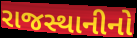
રાજસ્થાનીનો